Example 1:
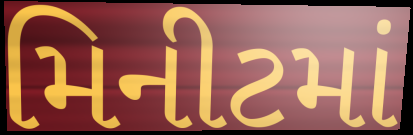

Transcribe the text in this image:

મિનીટમાં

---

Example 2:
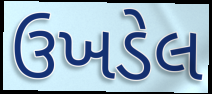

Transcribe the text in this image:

ઉખડેલ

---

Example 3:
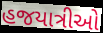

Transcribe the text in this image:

હજયાત્રીઓ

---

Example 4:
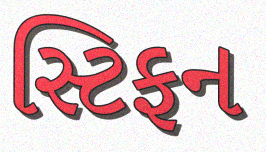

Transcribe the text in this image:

સ્ટિફન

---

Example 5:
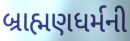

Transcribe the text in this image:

બ્રાહ્મણધર્મની